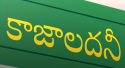
కాజాలదనీ